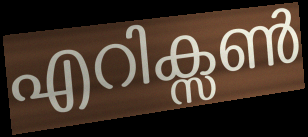
എറിക്സൺ